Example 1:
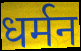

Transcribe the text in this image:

धर्मन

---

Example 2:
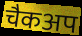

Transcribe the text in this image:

चैकअप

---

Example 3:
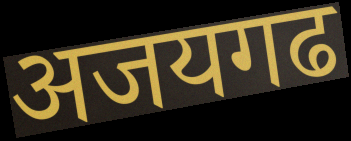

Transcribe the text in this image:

अजयगढ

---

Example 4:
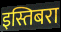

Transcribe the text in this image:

इस्तिबरा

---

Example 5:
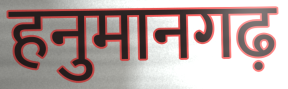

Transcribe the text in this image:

हनुमानगढ़